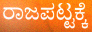
ರಾಜಪಟ್ಟಕ್ಕೆ